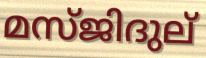
മസ്ജിദുല്